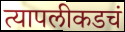
त्यापलीकडचं